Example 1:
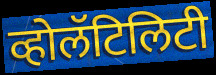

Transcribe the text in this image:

व्होलॅटिलिटी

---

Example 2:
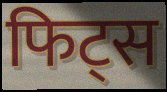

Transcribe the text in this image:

फिट्स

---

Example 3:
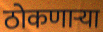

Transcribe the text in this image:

ठोकणाऱ्या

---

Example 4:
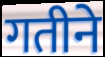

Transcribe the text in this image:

गतीने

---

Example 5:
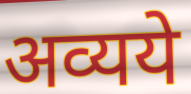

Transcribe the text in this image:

अव्यये